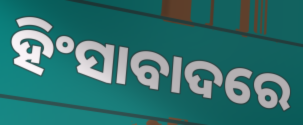
ହିଂସାବାଦରେ